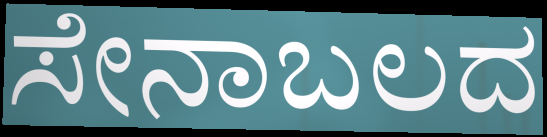
ಸೇನಾಬಲದ